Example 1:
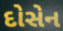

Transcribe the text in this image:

દોસેન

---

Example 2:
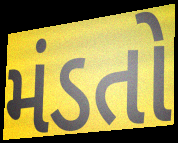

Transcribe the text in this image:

મંડતો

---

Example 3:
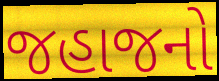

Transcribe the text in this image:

જહાજનો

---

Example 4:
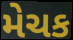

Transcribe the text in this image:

મેચક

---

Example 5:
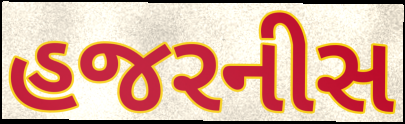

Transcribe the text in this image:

હજરનીસ